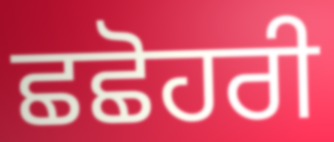
ਛਛੋਹਰੀ